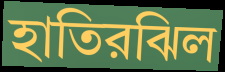
হাতিরঝিল